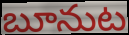
బూనుట